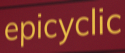
epicyclic